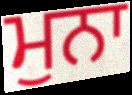
ਮੁਨਾ